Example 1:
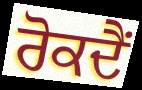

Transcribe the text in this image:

ਰੋਕਦੈਂ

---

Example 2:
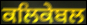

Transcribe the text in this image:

ਕਲਿਕੇਬਲ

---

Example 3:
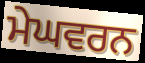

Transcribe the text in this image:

ਮੇਘਵਰਨ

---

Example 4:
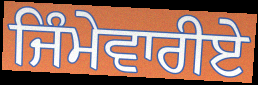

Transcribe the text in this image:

ਜਿੰਮੇਵਾਰੀਏ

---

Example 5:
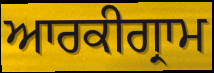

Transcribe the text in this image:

ਆਰਕੀਗ੍ਰਾਮ